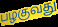
பழகுவது